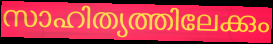
സാഹിത്യത്തിലേക്കും